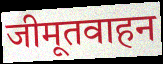
जीमूतवाहन